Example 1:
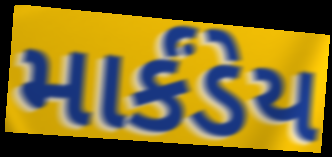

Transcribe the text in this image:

માર્કંડેય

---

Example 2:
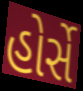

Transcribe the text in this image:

હોર્સે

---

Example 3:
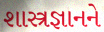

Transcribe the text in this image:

શાસ્ત્રજ્ઞાનને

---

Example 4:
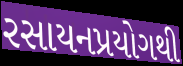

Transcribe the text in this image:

રસાયનપ્રયોગથી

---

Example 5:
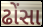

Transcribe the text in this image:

ઢોંસા